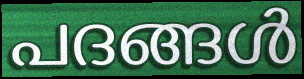
പദങ്ങൾ